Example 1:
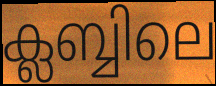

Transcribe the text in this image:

ക്ലബ്ബിലെ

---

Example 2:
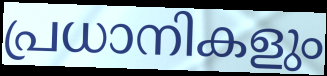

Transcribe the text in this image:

പ്രധാനികളും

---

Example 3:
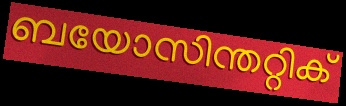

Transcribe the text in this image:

ബയോസിന്തറ്റിക്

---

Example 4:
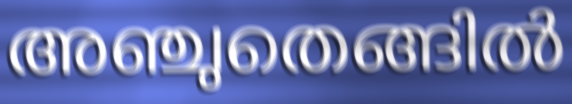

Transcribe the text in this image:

അഞ്ചുതെങ്ങിൽ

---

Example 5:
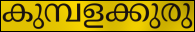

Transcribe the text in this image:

കുമ്പളക്കുരു